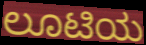
ಲೂಟಿಯ